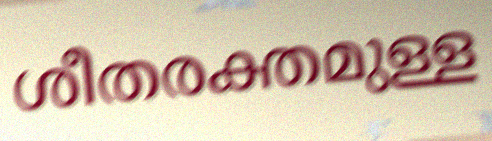
ശീതരക്തമുള്ള